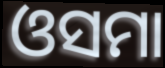
ଓସମା